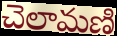
చెలామణి